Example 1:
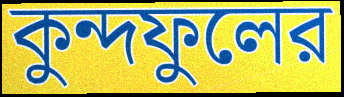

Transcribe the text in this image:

কুন্দফুলের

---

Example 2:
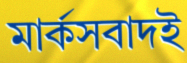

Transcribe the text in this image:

মার্কসবাদই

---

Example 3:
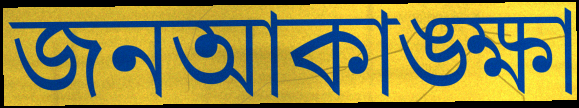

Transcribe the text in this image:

জনআকাঙ্ক্ষা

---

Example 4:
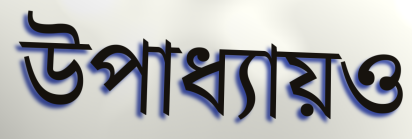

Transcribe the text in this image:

উপাধ্যায়ও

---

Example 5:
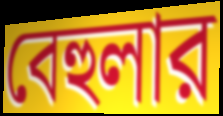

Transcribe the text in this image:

বেহুলার